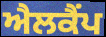
ਐਲਕੈਂਪ